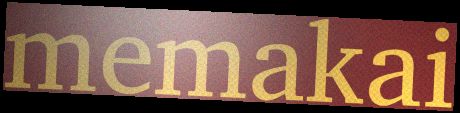
memakai